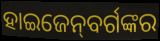
ହାଇଜେନ୍‌ବର୍ଗଙ୍କର